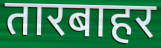
तारबाहर